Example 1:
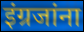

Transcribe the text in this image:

इंग्रजांना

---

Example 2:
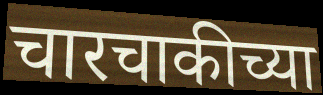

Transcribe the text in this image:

चारचाकीच्या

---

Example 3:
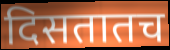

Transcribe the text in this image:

दिसतातच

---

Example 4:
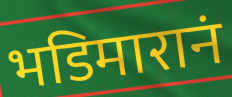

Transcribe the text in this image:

भडिमारानं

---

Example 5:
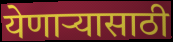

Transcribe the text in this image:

येणाऱ्यासाठी